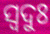
ସ୍ବଦୁଃ